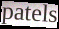
patels